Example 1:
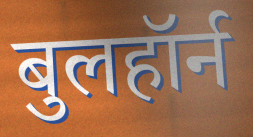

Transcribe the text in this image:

बुलहॉर्न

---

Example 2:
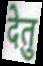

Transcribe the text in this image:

देतु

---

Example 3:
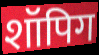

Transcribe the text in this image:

शॉपिग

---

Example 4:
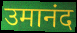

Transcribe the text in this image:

उमानंद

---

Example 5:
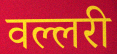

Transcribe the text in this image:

वल्लरी